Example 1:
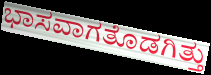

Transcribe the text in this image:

ಭಾಸವಾಗತೊಡಗಿತ್ತು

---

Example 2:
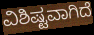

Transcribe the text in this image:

ವಿಶಿಷ್ಟವಾಗಿದೆ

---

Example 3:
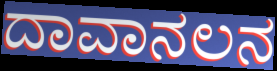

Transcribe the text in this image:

ದಾವಾನಲನ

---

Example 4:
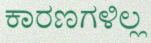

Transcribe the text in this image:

ಕಾರಣಗಳಿಲ್ಲ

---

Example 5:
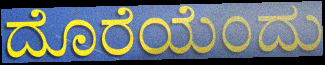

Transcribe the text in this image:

ದೊರೆಯೆಂದು